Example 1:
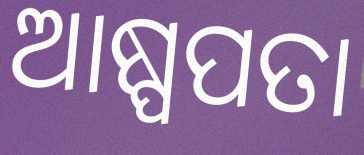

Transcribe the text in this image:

ଆଷ୍ପପତା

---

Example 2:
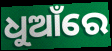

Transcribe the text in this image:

ଧୁଆଁରେ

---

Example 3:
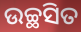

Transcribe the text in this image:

ଉଚ୍ଛସିତ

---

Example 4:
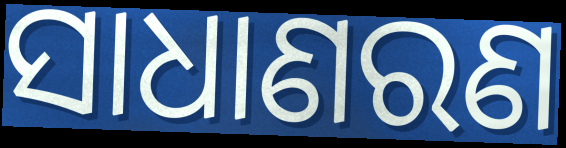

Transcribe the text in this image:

ସାଧାଣରଣ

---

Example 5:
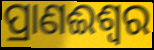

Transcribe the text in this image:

ପ୍ରାଣଈଶ୍ୱର